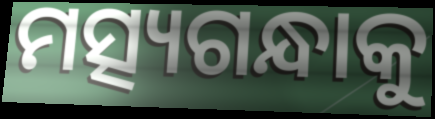
ମତ୍ସ୍ୟଗନ୍ଧାକୁ